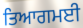
ਤਿਆਗਮਈ